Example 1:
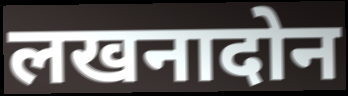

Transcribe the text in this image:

लखनादोन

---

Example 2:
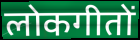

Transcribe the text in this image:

लोकगीतों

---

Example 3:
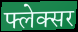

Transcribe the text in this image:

फ्लेक्सर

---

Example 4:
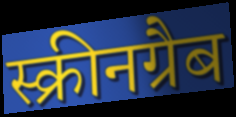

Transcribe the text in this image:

स्क्रीनग्रैब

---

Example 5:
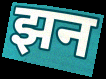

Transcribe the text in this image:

झन